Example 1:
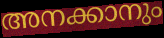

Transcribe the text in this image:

അനക്കാനും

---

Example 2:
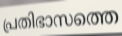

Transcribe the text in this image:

പ്രതിഭാസത്തെ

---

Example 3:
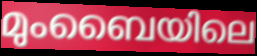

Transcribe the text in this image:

മുംബൈയിലെ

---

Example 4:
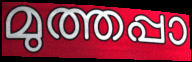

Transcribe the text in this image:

മുത്തപ്പാ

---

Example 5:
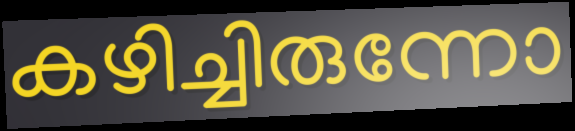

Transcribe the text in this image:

കഴിച്ചിരുന്നോ